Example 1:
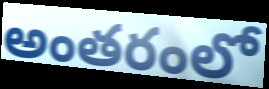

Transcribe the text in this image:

అంతరంలో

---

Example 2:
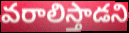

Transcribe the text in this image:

వరాలిస్తాడని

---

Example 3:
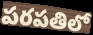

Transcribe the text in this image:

పరపతిలో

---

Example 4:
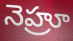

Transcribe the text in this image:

నెహ్రూ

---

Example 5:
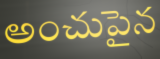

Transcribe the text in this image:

అంచుపైన